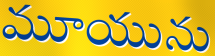
మూయును